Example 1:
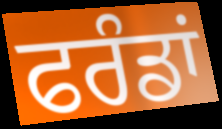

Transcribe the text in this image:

ਫਰੰਡਾਂ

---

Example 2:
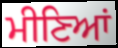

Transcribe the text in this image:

ਮੀਣਿਆਂ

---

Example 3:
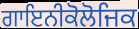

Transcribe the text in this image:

ਗਾਇਨੀਕੋਲੋਜਿਕ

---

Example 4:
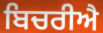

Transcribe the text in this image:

ਬਿਚਰੀਐ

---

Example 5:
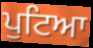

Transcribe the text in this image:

ਪੁਟਿਆ